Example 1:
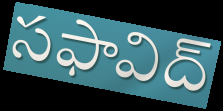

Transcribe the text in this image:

సఫావిద్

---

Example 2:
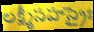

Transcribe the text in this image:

లక్ష్మీసహస్రైః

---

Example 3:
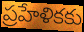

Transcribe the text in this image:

ప్రహేళికకు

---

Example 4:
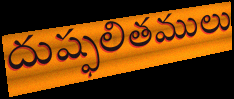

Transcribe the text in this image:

దుష్ఫలితములు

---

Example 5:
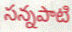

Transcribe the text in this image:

సన్నపాటి